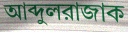
আব্দুলরাজাক